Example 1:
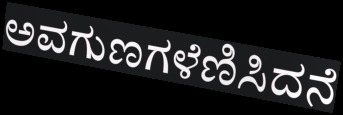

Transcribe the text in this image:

ಅವಗುಣಗಳೆಣಿಸಿದನೆ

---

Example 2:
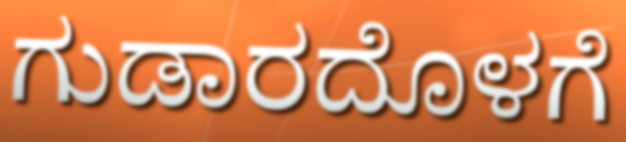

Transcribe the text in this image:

ಗುಡಾರದೊಳಗೆ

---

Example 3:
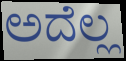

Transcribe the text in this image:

ಅದೆಲ್ಲ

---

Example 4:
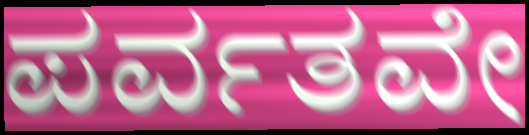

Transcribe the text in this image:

ಪರ್ವತವೇ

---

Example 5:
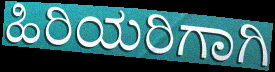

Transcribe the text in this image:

ಹಿರಿಯರಿಗಾಗಿ